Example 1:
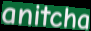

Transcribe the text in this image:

anitcha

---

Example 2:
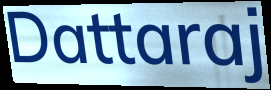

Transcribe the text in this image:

Dattaraj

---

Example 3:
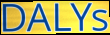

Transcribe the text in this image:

DALYs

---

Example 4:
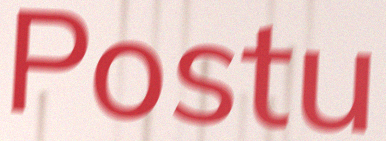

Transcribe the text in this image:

Postu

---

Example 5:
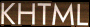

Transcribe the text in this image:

KHTML